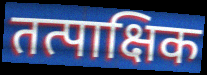
तत्पाक्षिक